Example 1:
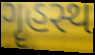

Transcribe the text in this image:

ગૄહસ્થ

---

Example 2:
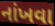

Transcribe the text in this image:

નાંખવા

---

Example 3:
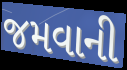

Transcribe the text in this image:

જમવાની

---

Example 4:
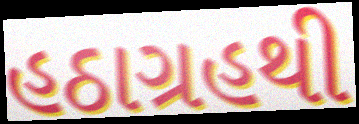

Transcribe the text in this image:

હઠાગ્રહથી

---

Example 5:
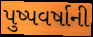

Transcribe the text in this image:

પુષ્પવર્ષાની